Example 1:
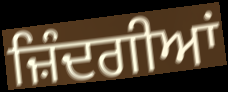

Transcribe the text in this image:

ਜ਼ਿੰਦਗੀਆਂ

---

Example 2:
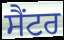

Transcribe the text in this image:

ਸੈਂਟਰ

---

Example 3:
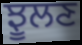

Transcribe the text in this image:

ਝੂਲਣ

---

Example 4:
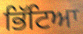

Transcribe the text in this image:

ਭਿੱਟਿਆ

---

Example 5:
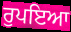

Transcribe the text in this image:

ਰੁਪਇਆ